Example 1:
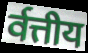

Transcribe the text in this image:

र्वत्तीय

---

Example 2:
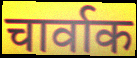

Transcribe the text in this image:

चार्वाक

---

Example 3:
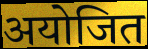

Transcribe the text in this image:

अयोजित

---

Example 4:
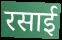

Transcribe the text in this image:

रसाई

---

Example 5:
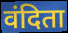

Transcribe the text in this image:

वंदिता